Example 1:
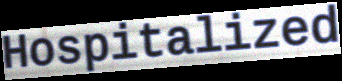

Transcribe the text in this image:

Hospitalized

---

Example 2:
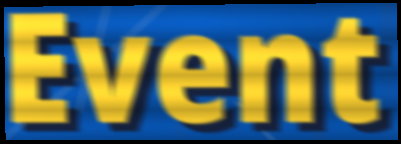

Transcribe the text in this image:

Event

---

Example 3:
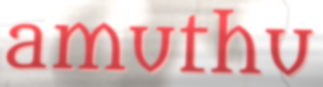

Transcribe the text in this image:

amuthu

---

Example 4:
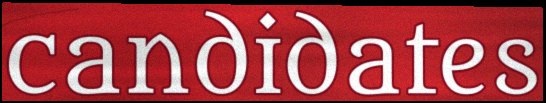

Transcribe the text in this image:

candidates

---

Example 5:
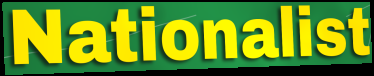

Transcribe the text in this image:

Nationalist